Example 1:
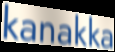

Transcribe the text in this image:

kanakka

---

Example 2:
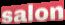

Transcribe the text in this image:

salon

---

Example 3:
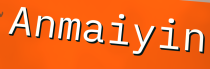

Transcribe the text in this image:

Anmaiyin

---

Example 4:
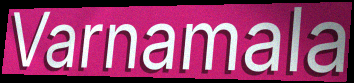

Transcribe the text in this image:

Varnamala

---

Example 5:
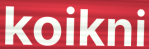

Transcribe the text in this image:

koikni